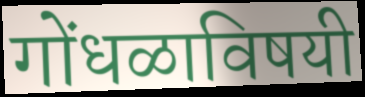
गोंधळाविषयी